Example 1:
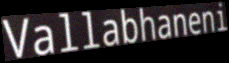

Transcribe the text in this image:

Vallabhaneni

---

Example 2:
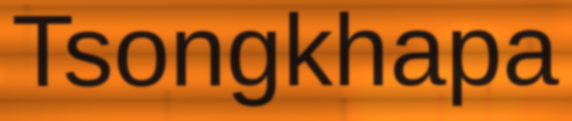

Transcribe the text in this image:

Tsongkhapa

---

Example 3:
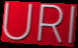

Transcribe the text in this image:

URI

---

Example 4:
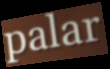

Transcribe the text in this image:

palar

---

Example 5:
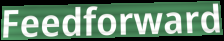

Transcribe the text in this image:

Feedforward